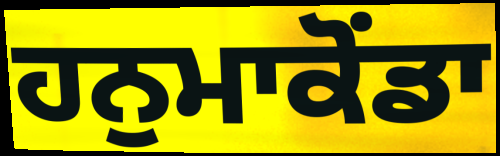
ਹਨੁਮਾਕੋਂਡਾ